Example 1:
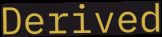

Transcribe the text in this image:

Derived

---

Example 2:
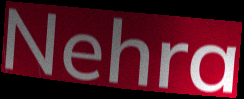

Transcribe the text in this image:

Nehra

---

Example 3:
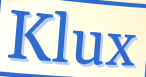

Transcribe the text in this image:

Klux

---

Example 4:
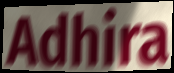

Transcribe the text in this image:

Adhira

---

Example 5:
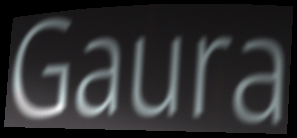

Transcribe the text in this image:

Gaura